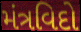
મંત્રવિદો